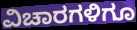
ವಿಚಾರಗಳಿಗೂ